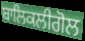
ਬਾਲਿਕਲੀਗੋਲ